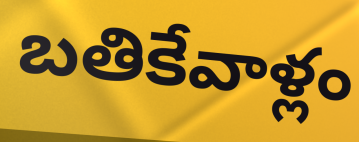
బతికేవాళ్లం